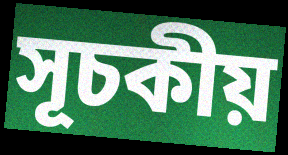
সূচকীয়